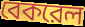
বেকরেল